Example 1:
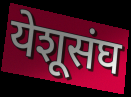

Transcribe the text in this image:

येशूसंघ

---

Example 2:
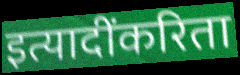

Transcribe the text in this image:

इत्यादींकरिता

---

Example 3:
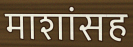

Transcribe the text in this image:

माशांसह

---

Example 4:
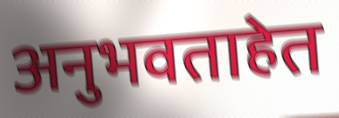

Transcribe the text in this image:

अनुभवताहेत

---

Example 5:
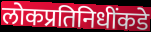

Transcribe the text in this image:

लोकप्रतिनिधींकडे